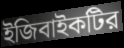
ইজিবাইকটির